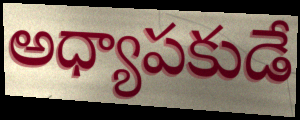
అధ్యాపకుడే